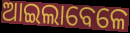
ଆଇଲାବେଳେ